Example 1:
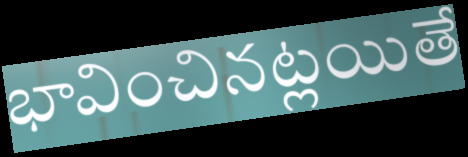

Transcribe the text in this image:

భావించినట్లయితే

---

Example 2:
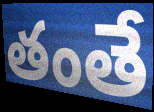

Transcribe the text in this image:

తంతే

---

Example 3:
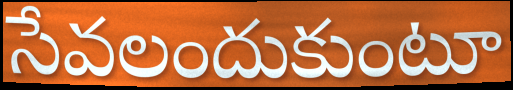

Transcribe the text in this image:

సేవలందుకుంటూ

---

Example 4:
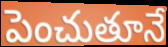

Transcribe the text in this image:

పెంచుతూనే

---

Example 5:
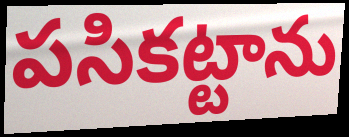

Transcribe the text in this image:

పసికట్టాను